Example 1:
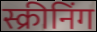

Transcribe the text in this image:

स्क्रीनिंग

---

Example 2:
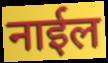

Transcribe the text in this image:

नाईल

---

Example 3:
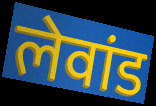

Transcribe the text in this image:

लेवांड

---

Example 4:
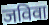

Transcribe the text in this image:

जविवा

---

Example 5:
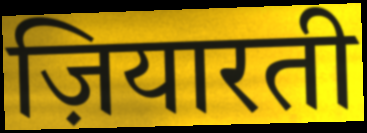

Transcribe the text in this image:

ज़ियारती